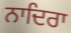
ਨਾਦਿਰਾ